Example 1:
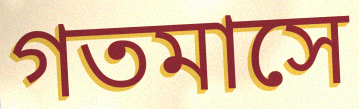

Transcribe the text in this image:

গতমাসে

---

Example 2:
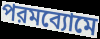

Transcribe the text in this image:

পরমব্যোমে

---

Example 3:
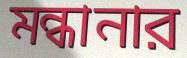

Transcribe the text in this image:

মন্ধানার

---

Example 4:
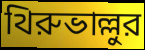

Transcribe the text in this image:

থিরুভাল্লুর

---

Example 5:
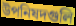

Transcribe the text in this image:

উপনিষদগুলি